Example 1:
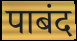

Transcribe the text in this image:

पाबंद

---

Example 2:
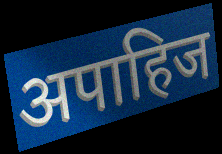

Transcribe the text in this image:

अपाहिज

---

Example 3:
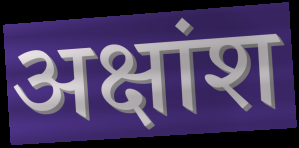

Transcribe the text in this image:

अक्षांश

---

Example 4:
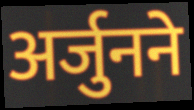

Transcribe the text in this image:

अर्जुनने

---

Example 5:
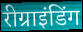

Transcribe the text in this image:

रीग्राइंडिंग